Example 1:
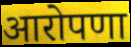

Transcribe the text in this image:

आरोपणा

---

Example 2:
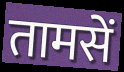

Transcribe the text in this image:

तामसें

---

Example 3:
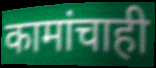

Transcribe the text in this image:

कामांचाही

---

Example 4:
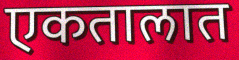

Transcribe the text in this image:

एकतालात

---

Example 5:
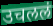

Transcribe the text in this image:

उचललं